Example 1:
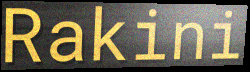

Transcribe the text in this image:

Rakini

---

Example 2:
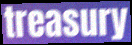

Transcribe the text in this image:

treasury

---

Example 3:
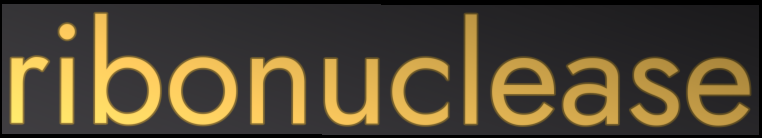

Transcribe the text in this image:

ribonuclease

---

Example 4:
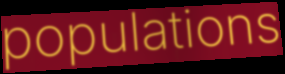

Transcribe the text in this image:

populations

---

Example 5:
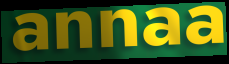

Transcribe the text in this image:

annaa